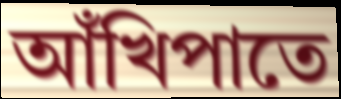
আঁখিপাতে